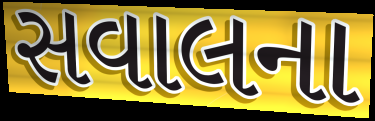
સવાલના